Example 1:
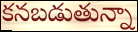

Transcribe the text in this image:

కనబడుతున్నా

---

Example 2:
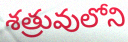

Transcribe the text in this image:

శత్రువులోని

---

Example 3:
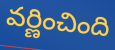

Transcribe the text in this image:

వర్ణించింది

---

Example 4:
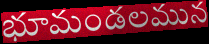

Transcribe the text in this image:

భూమండలమున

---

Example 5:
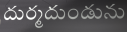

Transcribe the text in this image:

దుర్మదుండును